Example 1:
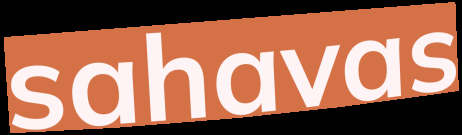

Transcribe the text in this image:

sahavas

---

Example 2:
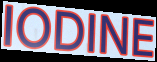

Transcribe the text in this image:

IODINE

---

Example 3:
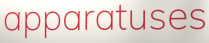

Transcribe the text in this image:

apparatuses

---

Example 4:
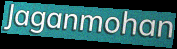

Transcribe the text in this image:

Jaganmohan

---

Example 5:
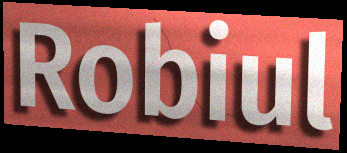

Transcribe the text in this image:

Robiul